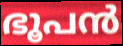
ഭൂപൻ